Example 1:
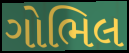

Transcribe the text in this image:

ગોભિલ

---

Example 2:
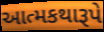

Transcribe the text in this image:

આત્મકથારૂપે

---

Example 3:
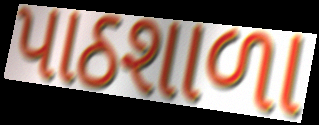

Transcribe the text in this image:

પાઠશાળા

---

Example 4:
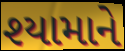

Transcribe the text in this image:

શ્યામાને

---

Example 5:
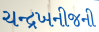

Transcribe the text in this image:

ચન્દ્રખનીજની